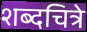
शब्दचित्रे